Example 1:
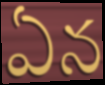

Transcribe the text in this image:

ఏన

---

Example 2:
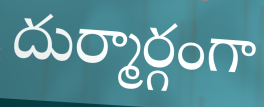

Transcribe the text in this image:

దుర్మార్గంగా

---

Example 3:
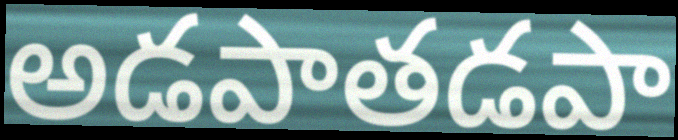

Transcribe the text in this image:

అడపాతడపా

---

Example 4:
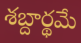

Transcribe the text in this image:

శబ్దార్థమే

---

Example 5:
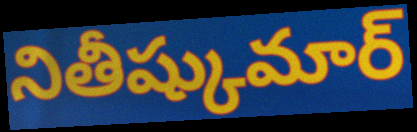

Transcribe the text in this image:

నితీష్కుమార్